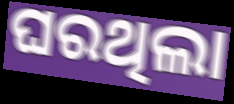
ଘରଥିଲା